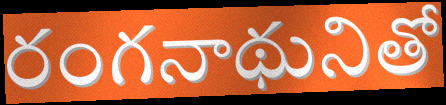
రంగనాథునితో